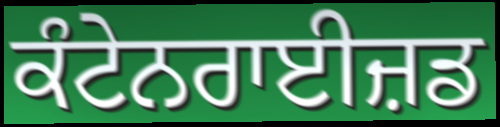
ਕੰਟੇਨਰਾਈਜ਼ਡ